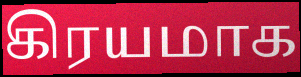
கிரயமாக